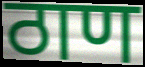
ठाण